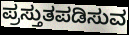
ಪ್ರಸ್ತುತಪಡಿಸುವ